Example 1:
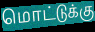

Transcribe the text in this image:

மொட்டுக்கு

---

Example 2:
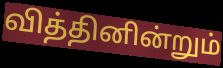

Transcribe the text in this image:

வித்தினின்றும்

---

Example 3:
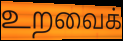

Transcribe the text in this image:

உறவைக்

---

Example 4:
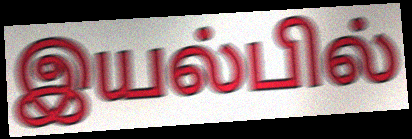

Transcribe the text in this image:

இயல்பில்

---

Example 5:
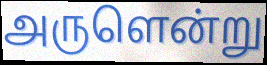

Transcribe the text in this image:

அருளென்று